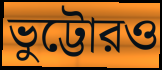
ভুট্টোরও